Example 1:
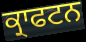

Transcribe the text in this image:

ਕ੍ਰਾਫਟਨ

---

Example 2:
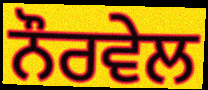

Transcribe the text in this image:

ਨੌਰਵੇਲ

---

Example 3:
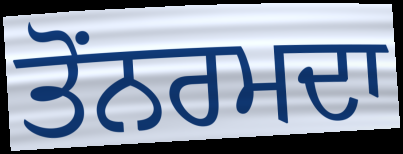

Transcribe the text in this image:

ਤੋਂਨਰਮਦਾ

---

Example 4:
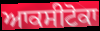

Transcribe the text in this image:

ਆਕਸੀਟੋਕਾ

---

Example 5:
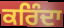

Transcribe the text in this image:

ਕਰਿੰਦਾ